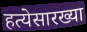
हत्येसारख्या